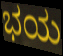
ಭಯ